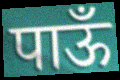
पाऊँ